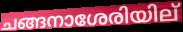
ചങ്ങനാശേരിയില്